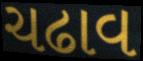
ચઢાવ